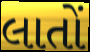
લાતોં